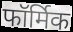
फॉर्मिक